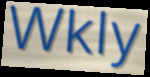
Wkly